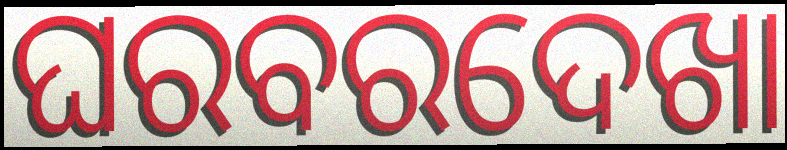
ଘରବରଦେଖା